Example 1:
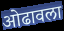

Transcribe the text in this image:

ओढावला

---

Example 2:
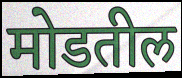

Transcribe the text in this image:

मोडतील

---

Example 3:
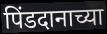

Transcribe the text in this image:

पिंडदानाच्या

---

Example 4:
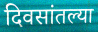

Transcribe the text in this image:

दिवसांतल्या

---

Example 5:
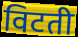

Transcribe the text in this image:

विटती